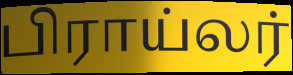
பிராய்லர்